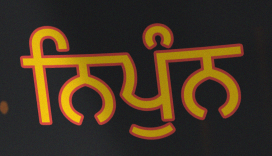
ਨਿਪੁੰਨ